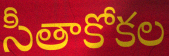
సీతాకోకల